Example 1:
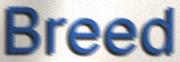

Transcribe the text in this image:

Breed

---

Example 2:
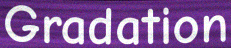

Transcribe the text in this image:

Gradation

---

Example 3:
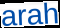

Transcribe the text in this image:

arah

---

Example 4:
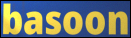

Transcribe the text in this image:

basoon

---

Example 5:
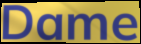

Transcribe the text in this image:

Dame